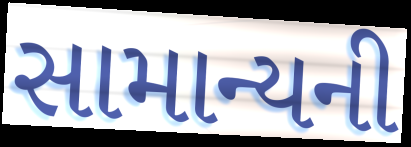
સામાન્યની